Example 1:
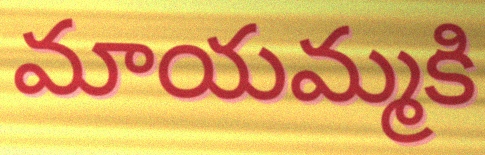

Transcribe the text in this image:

మాయమ్మకి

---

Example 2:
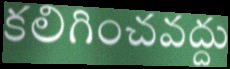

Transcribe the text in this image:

కలిగించవద్దు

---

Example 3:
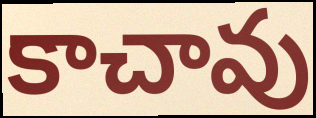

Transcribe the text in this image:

కాచావు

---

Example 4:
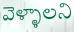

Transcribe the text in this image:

వెళ్ళాలని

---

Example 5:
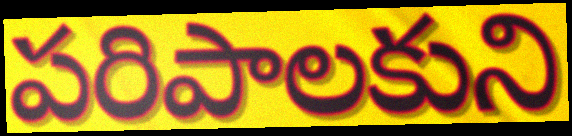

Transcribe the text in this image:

పరిపాలకుని